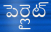
పెర్లైట్